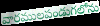
వారములపండుగలోను